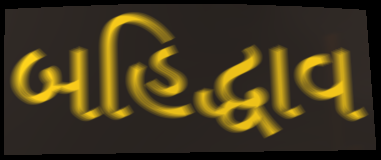
બહિદ્ધાવ